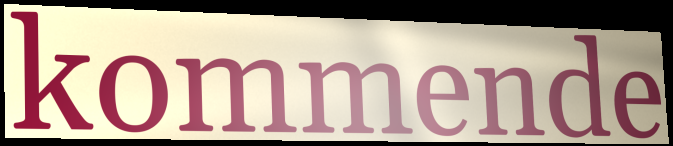
kommende